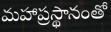
మహాప్రస్థానంతో